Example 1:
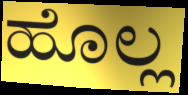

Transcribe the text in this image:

ಹೊಲ್ಲ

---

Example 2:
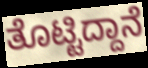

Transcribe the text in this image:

ತೊಟ್ಟಿದ್ದಾನೆ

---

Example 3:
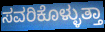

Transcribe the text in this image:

ಸವರಿಕೊಳ್ಳುತ್ತಾ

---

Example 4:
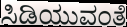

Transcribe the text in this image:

ಸಿಡಿಯುವಂತೆ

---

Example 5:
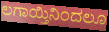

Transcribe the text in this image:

ಲಗಾಯ್ತಿನಿಂದಲೂ